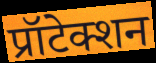
प्रॉटेक्शन